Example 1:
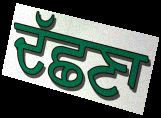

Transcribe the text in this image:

ਦੱਛਣਾ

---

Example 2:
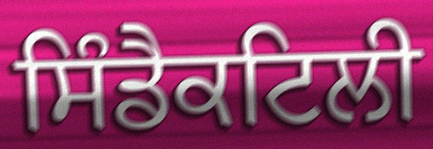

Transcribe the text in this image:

ਸਿੰਡੈਕਟਿਲੀ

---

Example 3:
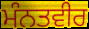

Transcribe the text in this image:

ਮੰਨਤਵੀਰ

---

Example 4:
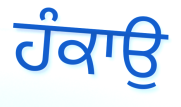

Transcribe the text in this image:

ਹੰਕਾਉ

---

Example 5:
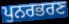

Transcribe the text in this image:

ਪੁਨਰਭਰਣ